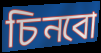
চিনবো